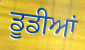
ਡੂਡੀਆਂ